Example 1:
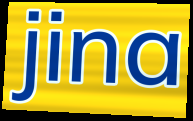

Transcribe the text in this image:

jina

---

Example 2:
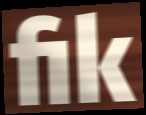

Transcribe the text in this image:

fik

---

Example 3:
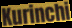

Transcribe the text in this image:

Kurinchi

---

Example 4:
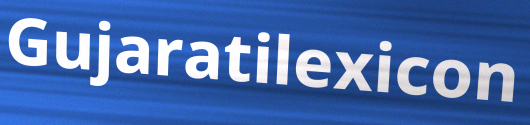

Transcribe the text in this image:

Gujaratilexicon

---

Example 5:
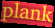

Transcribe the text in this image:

plank